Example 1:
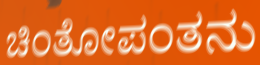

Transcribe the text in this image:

ಚಿಂತೋಪಂತನು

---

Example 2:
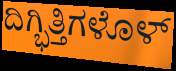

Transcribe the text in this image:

ದಿಗ್ಭಿತ್ತಿಗಳೊಳ್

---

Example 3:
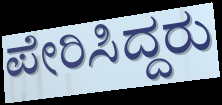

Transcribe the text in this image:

ಪೇರಿಸಿದ್ದರು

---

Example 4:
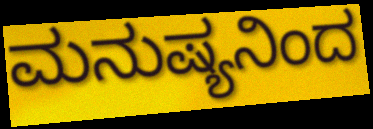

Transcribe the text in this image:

ಮನುಷ್ಯನಿಂದ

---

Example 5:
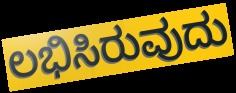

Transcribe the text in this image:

ಲಭಿಸಿರುವುದು